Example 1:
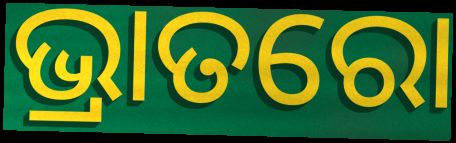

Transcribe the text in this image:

ଭ୍ରାତରୋ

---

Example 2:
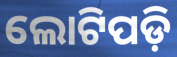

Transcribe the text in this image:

ଲୋଟିପଡ଼ି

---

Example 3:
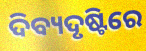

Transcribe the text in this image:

ଦିବ୍ୟଦୃଷ୍ଟିରେ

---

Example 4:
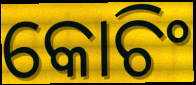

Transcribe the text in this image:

କୋଚିଂ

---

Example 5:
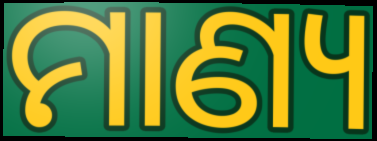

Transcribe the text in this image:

ମାଣ୍ୟ